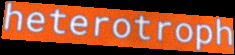
heterotroph